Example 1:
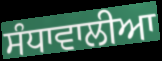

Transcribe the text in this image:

ਸੰਧਾਵਾਲੀਆ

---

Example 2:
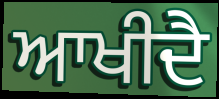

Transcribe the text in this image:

ਆਖੀਦੈ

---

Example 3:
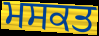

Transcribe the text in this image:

ਮਸਕਤ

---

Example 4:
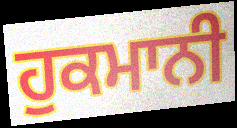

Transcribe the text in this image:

ਹੁਕਮਾਨੀ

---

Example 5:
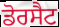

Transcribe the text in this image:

ਡੋਰਸੈਟ